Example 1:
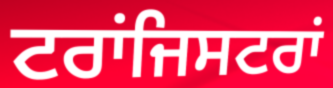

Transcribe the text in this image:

ਟਰਾਂਜਿਸਟਰਾਂ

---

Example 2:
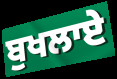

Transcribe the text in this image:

ਬੁਖਲਾਏ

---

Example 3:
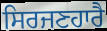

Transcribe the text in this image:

ਸਿਰਜਣਹਾਰੈ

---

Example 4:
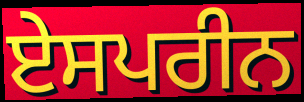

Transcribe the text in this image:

ਏਸਪਰੀਨ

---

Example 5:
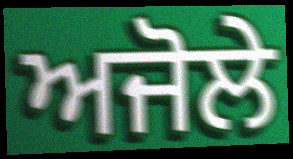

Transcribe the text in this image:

ਅਜੋਲੇ